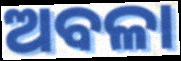
ଅବଳା